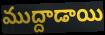
ముద్దాడాయి